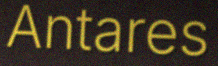
Antares